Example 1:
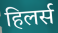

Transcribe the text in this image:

हिलर्स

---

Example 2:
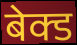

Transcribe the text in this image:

बेक्ड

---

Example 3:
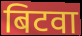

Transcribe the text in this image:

बिटवा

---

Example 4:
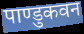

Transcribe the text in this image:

पाण्डुकवन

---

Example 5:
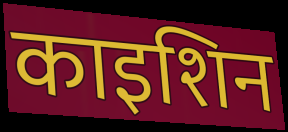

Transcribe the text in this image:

काइशिन